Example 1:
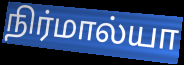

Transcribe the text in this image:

நிர்மால்யா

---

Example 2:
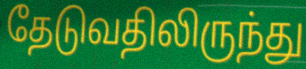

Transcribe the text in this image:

தேடுவதிலிருந்து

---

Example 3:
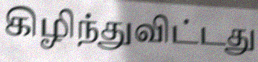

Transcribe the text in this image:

கிழிந்துவிட்டது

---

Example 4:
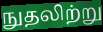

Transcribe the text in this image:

நுதலிற்று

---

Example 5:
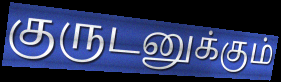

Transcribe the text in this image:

குருடனுக்கும்